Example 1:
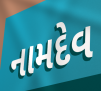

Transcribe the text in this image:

નામદેવ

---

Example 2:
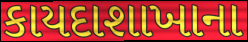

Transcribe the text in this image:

કાયદાશાખાના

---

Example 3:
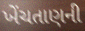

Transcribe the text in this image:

ખેંચતાણની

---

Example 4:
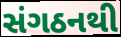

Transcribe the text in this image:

સંગઠનથી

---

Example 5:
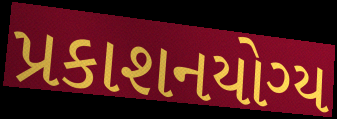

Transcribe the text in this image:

પ્રકાશનયોગ્ય